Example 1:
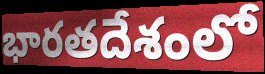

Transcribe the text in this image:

భారతదేశంలో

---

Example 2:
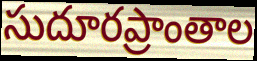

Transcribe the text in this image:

సుదూరప్రాంతాల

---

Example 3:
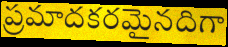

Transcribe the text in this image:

ప్రమాదకరమైనదిగా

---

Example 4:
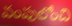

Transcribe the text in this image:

వంపులోంచి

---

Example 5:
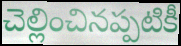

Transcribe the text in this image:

చెల్లించినప్పటికీ